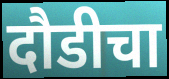
दौडीचा